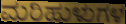
ಮರಿಹುಳುಗಳ